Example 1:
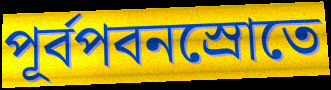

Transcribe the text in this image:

পূর্বপবনস্রোতে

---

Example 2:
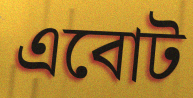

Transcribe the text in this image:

এবোট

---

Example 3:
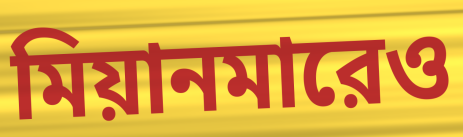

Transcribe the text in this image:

মিয়ানমারেও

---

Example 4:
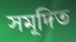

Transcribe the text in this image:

সমূদিত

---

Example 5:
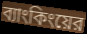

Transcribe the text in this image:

ব্যাংকিংয়ের